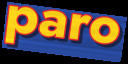
paro